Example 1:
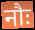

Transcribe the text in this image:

नौः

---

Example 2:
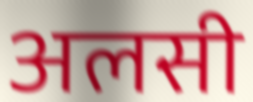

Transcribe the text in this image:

अलसी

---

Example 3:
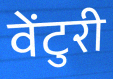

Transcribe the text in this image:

वेंटुरी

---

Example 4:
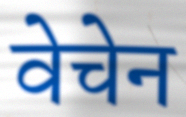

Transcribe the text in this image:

वेचेन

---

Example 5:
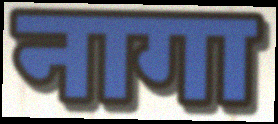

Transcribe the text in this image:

नागा